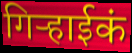
गिऱ्हाईकं